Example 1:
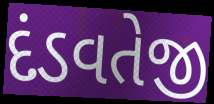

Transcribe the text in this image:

દંડવતેજી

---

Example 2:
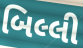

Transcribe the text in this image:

બિલ્લી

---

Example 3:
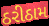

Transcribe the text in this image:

ઠરીઠામ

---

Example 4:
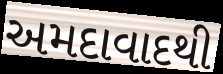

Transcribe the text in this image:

અમદાવાદથી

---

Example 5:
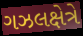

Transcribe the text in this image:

ગઝલક્ષેત્રે